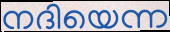
നദിയെന്ന